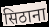
सिठाना